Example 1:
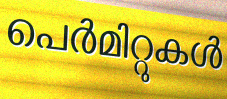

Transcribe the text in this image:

പെർമിറ്റുകൾ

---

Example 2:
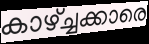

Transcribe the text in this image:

കാഴ്ച്ചക്കാരെ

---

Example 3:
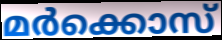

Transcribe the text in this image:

മർക്കൊസ്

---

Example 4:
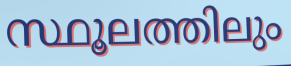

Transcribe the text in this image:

സ്ഥൂലത്തിലും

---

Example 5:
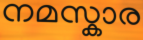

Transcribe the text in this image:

നമസ്കാര